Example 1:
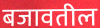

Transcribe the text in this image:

बजावतील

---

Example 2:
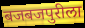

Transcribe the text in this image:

बजबजपुरीला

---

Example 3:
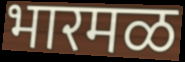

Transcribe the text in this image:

भारमळ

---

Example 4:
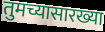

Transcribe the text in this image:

तुमच्यासारख्या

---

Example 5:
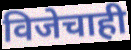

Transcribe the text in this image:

विजेचाही